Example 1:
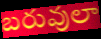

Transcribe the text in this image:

బరువులా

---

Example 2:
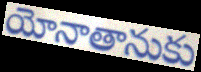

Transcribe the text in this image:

యోనాతానుకు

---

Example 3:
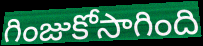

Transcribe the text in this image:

గింజుకోసాగింది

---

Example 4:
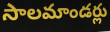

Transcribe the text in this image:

సాలమాండర్లు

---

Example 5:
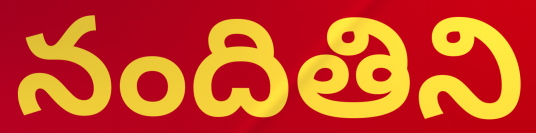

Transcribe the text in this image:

నందితిని